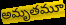
అమృతమూ